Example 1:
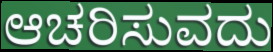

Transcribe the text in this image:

ಆಚರಿಸುವದು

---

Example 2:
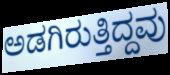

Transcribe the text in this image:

ಅಡಗಿರುತ್ತಿದ್ದವು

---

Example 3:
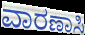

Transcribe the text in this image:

ವಾರಣಾಸಿ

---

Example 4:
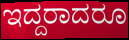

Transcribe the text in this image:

ಇದ್ದರಾದರೂ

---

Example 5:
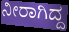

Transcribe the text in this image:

ನೀರಾಗಿದ್ದ